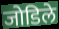
जोडिले